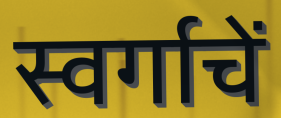
स्वर्गाचें